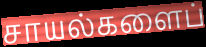
சாயல்களைப்